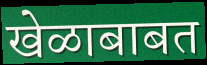
खेळाबाबत